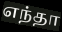
எந்தா